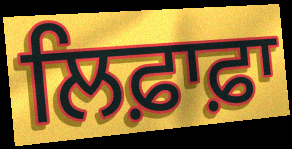
ਲਿਫ਼ਾਫ਼ਾ